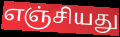
எஞ்சியது